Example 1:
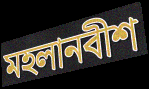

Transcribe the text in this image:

মহলানবীশ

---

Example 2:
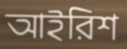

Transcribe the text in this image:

আইরিশ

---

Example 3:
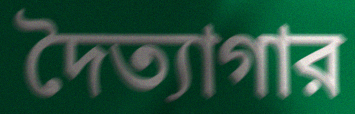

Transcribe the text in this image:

দৈত্যাগার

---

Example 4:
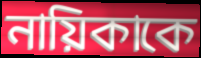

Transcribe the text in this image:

নায়িকাকে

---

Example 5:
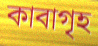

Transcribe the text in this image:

কাবাগৃহ